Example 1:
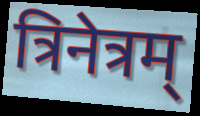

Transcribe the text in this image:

त्रिनेत्रम्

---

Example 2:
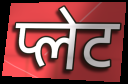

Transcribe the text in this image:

प्लेट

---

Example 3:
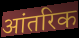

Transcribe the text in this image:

आंतरिक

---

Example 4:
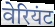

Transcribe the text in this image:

वेरियंट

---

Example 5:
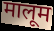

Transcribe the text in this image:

मालूम